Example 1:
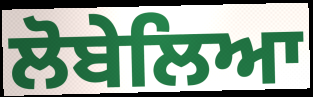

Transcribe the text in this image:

ਲੋਬੇਲਿਆ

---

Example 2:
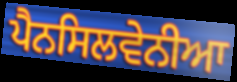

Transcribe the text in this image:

ਪੈਨਸਿਲਵੇਨੀਆ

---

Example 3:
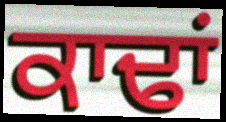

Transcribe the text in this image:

ਕਾਢਾਂ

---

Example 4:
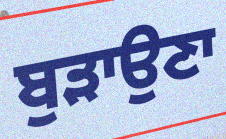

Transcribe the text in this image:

ਬੁੜਾਉਣਾ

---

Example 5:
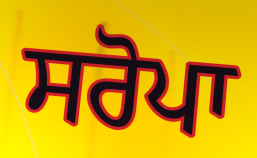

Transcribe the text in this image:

ਸਰੋਪਾ